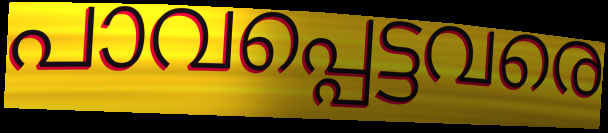
പാവപ്പെട്ടവരെ